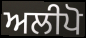
ਅਲੀਪੋ